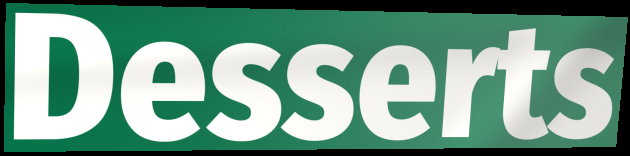
Desserts